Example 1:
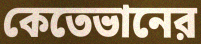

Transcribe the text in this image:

কেতেভানের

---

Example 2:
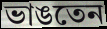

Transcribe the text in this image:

ভাঙতেন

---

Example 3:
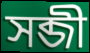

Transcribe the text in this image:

সব্জী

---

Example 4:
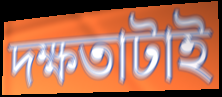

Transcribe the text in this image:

দক্ষতাটাই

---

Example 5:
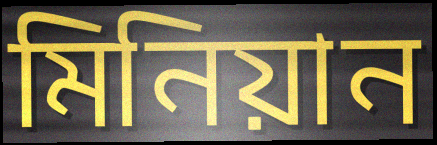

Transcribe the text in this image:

মিনিয়ান